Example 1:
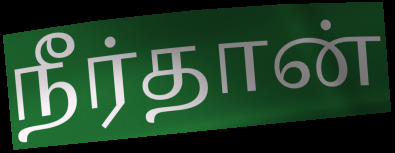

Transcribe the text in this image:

நீர்தான்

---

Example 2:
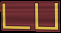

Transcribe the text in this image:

டப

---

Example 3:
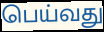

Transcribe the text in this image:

பெய்வது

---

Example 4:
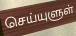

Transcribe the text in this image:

செய்யுளுள்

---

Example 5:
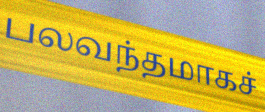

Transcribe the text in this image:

பலவந்தமாகச்